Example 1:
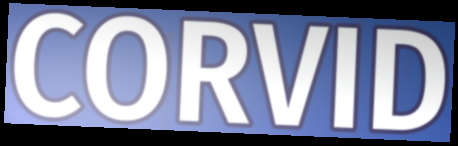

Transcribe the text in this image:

CORVID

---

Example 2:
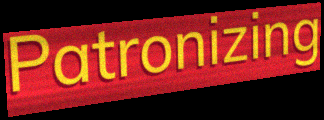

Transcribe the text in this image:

Patronizing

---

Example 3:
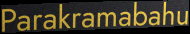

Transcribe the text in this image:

Parakramabahu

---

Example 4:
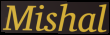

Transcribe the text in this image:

Mishal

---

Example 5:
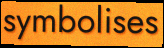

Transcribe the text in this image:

symbolises